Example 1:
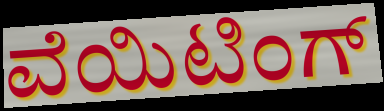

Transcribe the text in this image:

ವೆಯಿಟಿಂಗ್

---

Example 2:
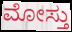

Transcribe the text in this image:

ಮೋಸ್ತು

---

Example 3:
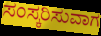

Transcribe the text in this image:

ಸಂಸ್ಕರಿಸುವಾಗ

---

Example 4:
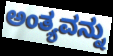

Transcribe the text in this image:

ಅಂತ್ಯವನ್ನು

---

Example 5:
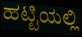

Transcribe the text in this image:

ಹಟ್ಟಿಯಲ್ಲಿ